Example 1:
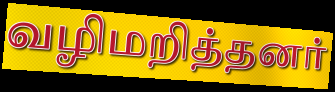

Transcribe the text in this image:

வழிமறித்தனர்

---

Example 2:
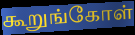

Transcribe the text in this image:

கூறுங்கோள்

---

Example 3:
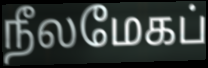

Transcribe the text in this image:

நீலமேகப்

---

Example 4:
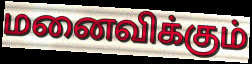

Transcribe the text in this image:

மனைவிக்கும்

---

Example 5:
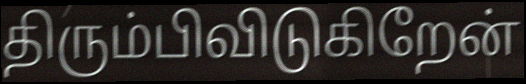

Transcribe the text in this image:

திரும்பிவிடுகிறேன்